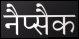
नैप्सैक